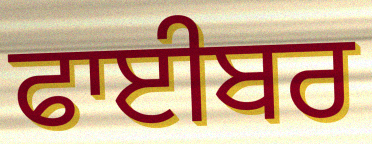
ਫਾਈਬਰ